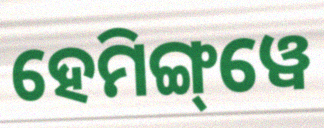
ହେମିଙ୍ଗ୍‌ୱେ